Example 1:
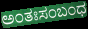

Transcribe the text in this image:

ಅಂತಃಸಂಬಂಧ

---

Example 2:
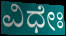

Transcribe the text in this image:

ವಿಧೇಃ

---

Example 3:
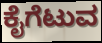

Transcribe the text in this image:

ಕೈಗೆಟುವ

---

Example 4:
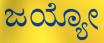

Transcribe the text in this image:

ಜಯ್ಯೋ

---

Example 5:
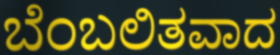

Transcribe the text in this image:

ಬೆಂಬಲಿತವಾದ